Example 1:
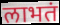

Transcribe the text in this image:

लाभतं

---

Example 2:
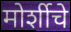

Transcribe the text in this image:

मोर्शीचे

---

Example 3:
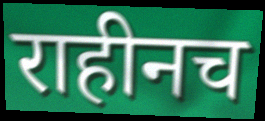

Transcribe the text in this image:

राहीनच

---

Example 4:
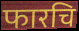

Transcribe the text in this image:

फारचि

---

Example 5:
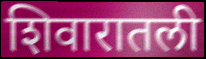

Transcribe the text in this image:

शिवारातली